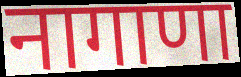
नागाणा